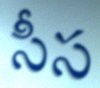
సీస